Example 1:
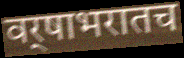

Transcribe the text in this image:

वर्षाभरातच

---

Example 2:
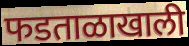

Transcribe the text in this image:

फडताळाखाली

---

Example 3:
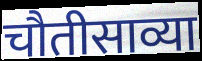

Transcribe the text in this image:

चौतीसाव्या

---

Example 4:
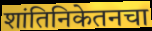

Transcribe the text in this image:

शांतिनिकेतनचा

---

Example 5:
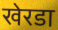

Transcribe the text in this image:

खेरडा